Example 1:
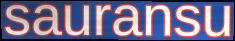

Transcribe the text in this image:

sauransu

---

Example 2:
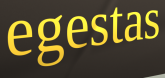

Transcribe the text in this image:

egestas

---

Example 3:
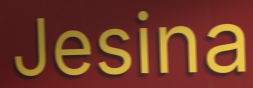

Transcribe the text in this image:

Jesina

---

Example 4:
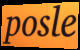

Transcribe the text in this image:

posle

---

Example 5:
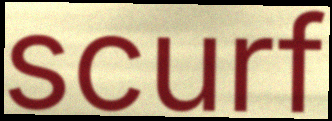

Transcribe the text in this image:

scurf